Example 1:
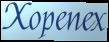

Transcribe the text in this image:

Xopenex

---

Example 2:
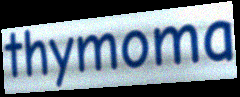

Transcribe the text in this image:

thymoma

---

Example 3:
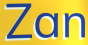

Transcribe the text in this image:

Zan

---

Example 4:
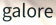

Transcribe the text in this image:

galore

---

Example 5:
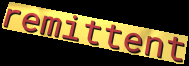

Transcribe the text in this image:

remittent